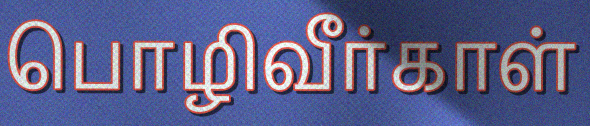
பொழிவீர்காள்